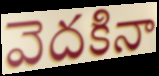
వెదకినా